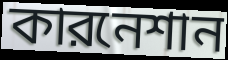
কারনেশান